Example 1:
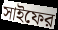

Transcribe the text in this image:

সাইফের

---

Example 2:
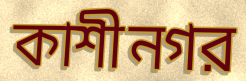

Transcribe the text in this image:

কাশীনগর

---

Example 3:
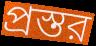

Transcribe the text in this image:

প্রস্তর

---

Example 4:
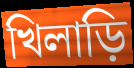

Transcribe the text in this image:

খিলাড়ি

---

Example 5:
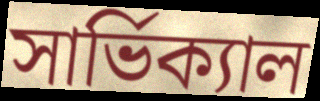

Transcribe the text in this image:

সার্ভিক্যাল